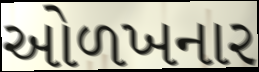
ઓળખનાર